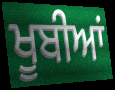
ਖੂਬੀਆਂ